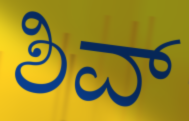
ಶಿವ್